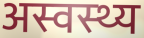
अस्वस्थ्य